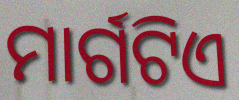
ମାର୍ଗଟିଏ